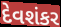
દેવશંકર